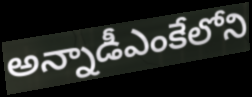
అన్నాడీఎంకేలోని